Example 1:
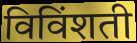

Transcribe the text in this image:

विविंशती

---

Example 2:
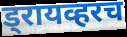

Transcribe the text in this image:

ड्रायव्हरच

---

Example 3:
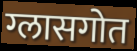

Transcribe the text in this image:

ग्लासगोत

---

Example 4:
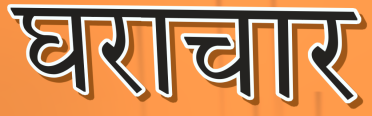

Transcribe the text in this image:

घराचार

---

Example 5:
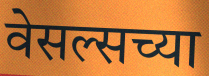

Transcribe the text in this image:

वेसल्सच्या